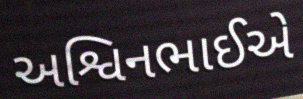
અશ્વિનભાઈએ